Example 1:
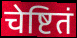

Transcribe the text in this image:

चेष्टितं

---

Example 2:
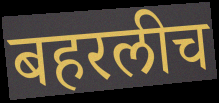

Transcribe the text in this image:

बहरलीच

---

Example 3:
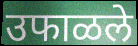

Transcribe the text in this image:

उफाळले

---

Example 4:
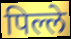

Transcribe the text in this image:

पिल्ले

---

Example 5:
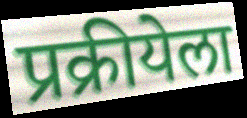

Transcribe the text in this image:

प्रक्रीयेला